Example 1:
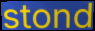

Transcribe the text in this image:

stond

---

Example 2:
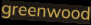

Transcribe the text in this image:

greenwood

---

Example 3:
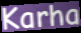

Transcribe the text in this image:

Karha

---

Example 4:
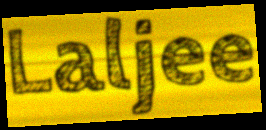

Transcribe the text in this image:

Laljee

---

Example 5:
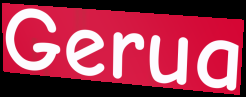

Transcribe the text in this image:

Gerua